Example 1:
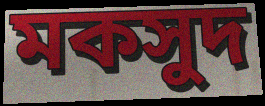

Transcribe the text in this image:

মকসুদ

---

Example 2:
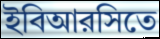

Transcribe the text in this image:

ইবিআরসিতে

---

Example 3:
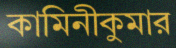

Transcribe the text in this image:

কামিনীকুমার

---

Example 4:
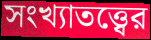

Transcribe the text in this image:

সংখ্যাতত্ত্বের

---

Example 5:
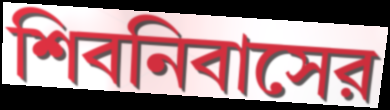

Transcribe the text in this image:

শিবনিবাসের